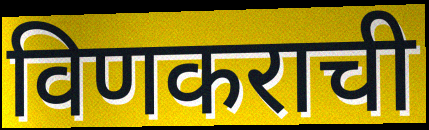
विणकराची